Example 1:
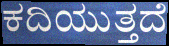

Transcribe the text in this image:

ಕದಿಯುತ್ತದೆ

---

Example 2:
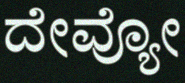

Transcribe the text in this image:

ದೇವ್ಯೋ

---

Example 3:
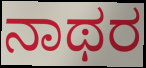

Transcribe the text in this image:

ನಾಥರ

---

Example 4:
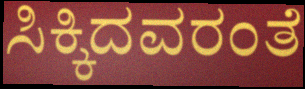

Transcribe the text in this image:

ಸಿಕ್ಕಿದವರಂತೆ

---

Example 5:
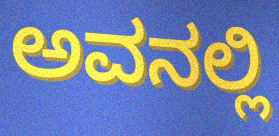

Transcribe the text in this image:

ಅವನಲ್ಲಿ